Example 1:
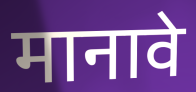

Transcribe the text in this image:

मानावे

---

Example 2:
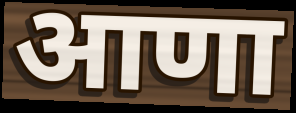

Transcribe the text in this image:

आणा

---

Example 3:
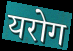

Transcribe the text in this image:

यरोग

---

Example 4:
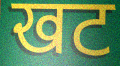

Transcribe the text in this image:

खट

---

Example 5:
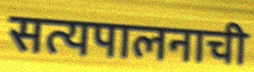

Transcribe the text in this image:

सत्यपालनाची